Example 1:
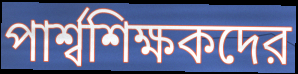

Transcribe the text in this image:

পার্শ্বশিক্ষকদের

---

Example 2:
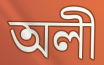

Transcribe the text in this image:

অলী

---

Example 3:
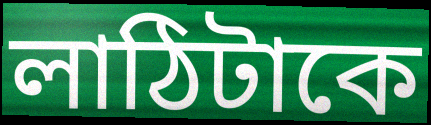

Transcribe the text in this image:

লাঠিটাকে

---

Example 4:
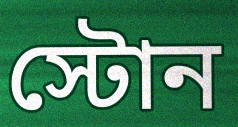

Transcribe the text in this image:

স্টোন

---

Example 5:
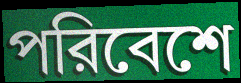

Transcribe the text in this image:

পরিবেশে